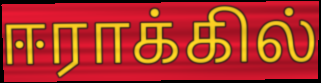
ஈராக்கில்